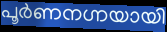
പൂർണനഗ്നയായി